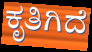
ಕೃತಿಗಿದೆ